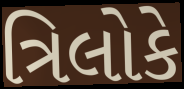
ત્રિલોકે